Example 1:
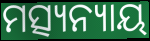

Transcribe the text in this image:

ମତ୍ସ୍ୟନ୍ୟାୟ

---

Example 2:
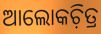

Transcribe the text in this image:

ଆଲୋକଚ଼ିତ୍ର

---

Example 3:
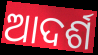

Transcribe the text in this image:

ଆଦର୍ଶ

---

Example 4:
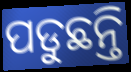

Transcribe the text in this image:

ପଡୁଛନ୍ତି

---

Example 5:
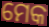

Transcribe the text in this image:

ମେକ